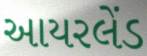
આયરલેંડ